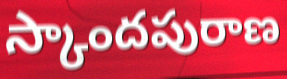
స్కాందపురాణ